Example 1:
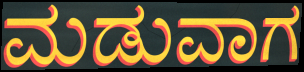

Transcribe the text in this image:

ಮಡುವಾಗ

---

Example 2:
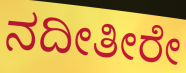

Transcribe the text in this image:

ನದೀತೀರೇ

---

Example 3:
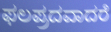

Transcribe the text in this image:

ಫಲಪ್ರದವಾದರೆ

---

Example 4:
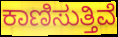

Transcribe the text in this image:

ಕಾಣಿಸುತ್ತಿವೆ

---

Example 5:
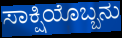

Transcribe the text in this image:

ಸಾಕ್ಷಿಯೊಬ್ಬನು